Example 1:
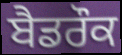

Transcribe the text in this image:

ਬੈਡਰੌਕ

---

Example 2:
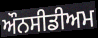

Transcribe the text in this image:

ਔਨਸੀਡੀਅਮ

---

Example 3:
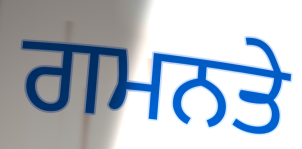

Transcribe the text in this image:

ਗਮਨਤੇ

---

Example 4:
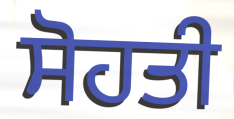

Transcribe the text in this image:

ਸੋਹਤੀ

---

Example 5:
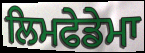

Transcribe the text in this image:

ਲਿਮਫੇਡੇਮਾ